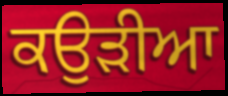
ਕਉੜੀਆ